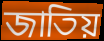
জাতিয়